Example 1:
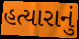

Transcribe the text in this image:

હત્યારાનું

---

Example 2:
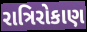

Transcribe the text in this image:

રાત્રિરોકાણ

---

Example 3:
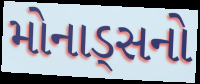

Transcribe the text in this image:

મોનાડ્સનો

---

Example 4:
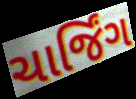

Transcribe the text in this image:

ચાર્જિંગ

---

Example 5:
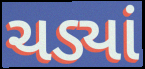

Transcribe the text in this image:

ચડ્યાં